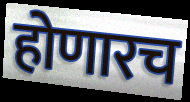
होणारच